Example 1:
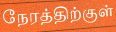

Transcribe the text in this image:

நேரத்திற்குள்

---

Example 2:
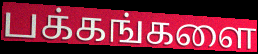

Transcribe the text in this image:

பக்கங்களை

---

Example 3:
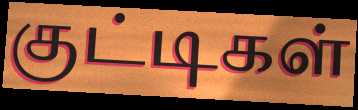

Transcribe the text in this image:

குட்டிகள்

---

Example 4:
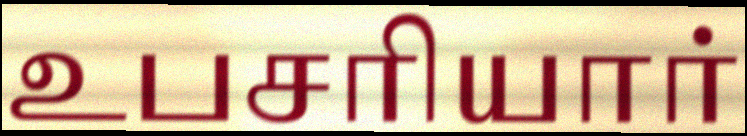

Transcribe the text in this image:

உபசரியார்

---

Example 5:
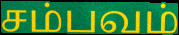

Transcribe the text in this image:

சம்பவம்